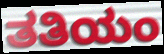
ತತಿಯಂ